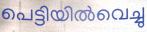
പെട്ടിയിൽവെച്ചു